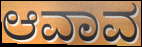
ಆವಾವ